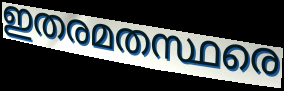
ഇതരമതസ്ഥരെ